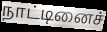
நாட்டினைச்